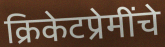
क्रिकेटप्रेमींचे